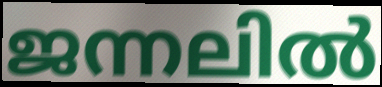
ജന്നലിൽ